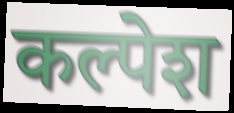
कल्पेश